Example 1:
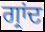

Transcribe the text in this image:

ਗ੍ਰਾਂਦ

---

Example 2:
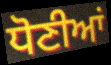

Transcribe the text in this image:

ਧੋਣੀਆਂ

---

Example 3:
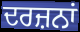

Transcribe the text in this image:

ਦਰਜ਼ਨਾਂ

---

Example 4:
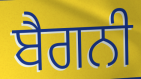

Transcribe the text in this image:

ਬੈਗਨੀ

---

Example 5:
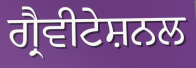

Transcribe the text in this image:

ਗ੍ਰੈਵੀਟੇਸ਼ਨਲ